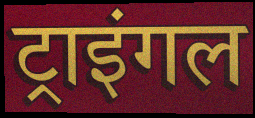
ट्राइंगल